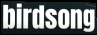
birdsong